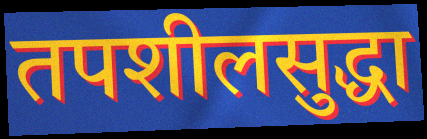
तपशीलसुद्धा